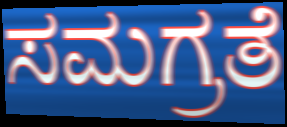
ಸಮಗ್ರತೆ